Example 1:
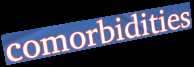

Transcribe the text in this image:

comorbidities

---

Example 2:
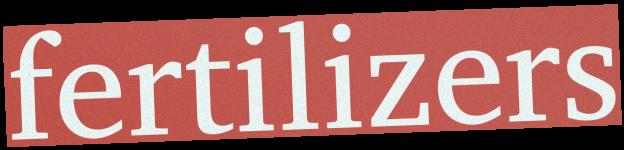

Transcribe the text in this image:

fertilizers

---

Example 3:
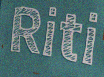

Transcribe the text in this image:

Riti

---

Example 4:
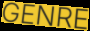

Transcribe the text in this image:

GENRE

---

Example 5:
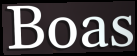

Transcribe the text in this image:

Boas